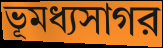
ভূমধ্যসাগর